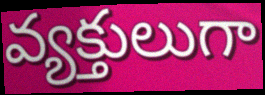
వ్యక్తులుగా